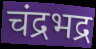
चंद्रभद्र